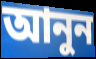
আনুন